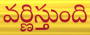
వర్ణిస్తుంది